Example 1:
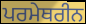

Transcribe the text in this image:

ਪਰਮੇਥਰੀਨ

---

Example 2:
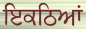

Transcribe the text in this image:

ਇਕਠਿਆਂ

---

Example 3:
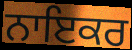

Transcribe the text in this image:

ਨਾਇਕਰ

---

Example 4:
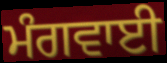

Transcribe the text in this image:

ਮੰਗਵਾਈ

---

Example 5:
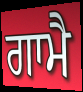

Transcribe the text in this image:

ਗਾਮੈ